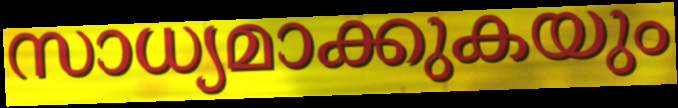
സാധ്യമാക്കുകയും